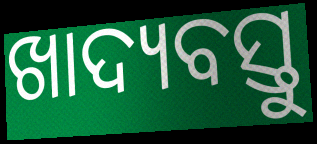
ଖାଦ୍ୟବସ୍ତୁ